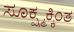
ಸೂಕ್ಷ್ಮಕ್ಕಿಂತ